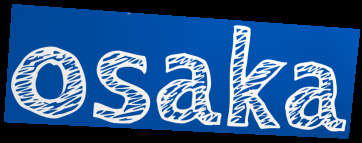
osaka